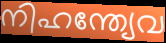
നിഹന്ത്യേവ